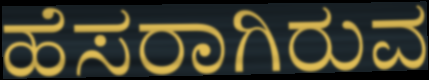
ಹೆಸರಾಗಿರುವ